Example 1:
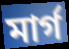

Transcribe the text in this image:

মাৰ্গ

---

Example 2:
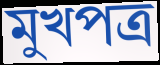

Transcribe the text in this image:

মুখপত্ৰ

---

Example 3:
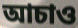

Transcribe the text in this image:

আচাও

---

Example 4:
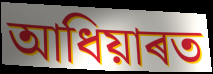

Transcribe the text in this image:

আধিয়াৰত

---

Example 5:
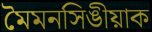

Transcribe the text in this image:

মৈমনসিঙীয়াক